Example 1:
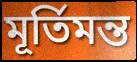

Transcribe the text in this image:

মূর্তিমন্ত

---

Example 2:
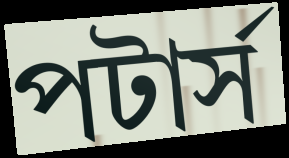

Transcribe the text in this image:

পটার্স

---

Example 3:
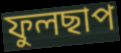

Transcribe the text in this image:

ফুলছাপ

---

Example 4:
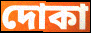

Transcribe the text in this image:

দোকা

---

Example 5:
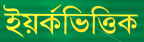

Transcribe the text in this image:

ইয়র্কভিত্তিক